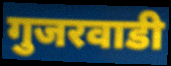
गुजरवाडी